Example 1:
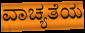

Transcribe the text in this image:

ವಾಚ್ಯತೆಯ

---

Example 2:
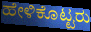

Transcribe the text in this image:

ಹೇಳಿಕೊಟ್ಟರು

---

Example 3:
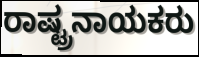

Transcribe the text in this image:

ರಾಷ್ಟ್ರನಾಯಕರು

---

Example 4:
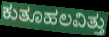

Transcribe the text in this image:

ಕುತೂಹಲವಿತ್ತು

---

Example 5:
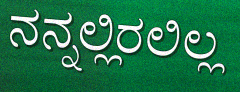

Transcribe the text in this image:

ನನ್ನಲ್ಲಿರಲಿಲ್ಲ